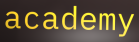
academy